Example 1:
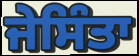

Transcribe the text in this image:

ਜੇਸਿੰਤਾ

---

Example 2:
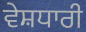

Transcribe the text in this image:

ਵੇਸ਼ਧਾਰੀ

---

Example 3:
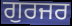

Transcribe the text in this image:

ਗੁਰਜਰ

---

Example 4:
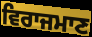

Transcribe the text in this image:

ਵਿਰਾਜਮਾਣ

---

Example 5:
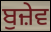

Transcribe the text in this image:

ਬੁਜ਼ੇਵ